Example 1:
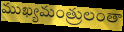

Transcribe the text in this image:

ముఖ్యమంత్రులంతా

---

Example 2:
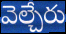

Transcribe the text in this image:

వెల్చేరు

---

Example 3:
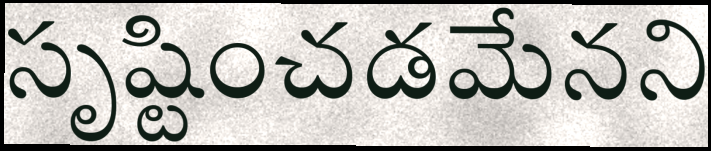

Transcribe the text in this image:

సృష్టించడమేనని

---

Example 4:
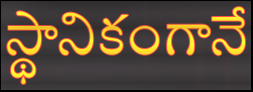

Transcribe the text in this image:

స్థానికంగానే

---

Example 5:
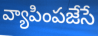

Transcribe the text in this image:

వ్యాపింపజేసే